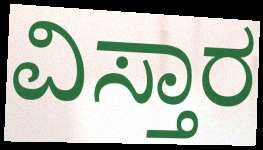
ವಿಸ್ತಾರ